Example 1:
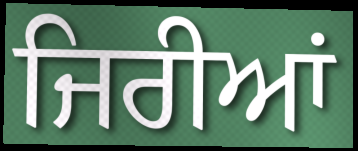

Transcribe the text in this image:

ਜਿਰੀਆਂ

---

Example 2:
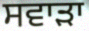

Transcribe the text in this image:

ਸਵਾੜਾ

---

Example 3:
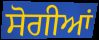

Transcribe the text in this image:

ਸੋਗੀਆਂ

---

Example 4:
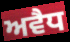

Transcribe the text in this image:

ਅਵੈਧ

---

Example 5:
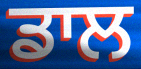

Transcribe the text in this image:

ਡਾਲ